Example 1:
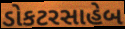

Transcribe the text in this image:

ડોકટરસાહેબ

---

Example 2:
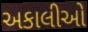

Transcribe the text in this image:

અકાલીઓ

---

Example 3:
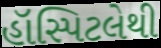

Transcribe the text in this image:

હૉસ્પિટલેથી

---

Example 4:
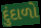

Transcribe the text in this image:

દુંદાળો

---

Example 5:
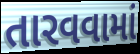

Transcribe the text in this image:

તારવવામાં